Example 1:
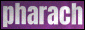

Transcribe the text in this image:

pharach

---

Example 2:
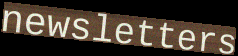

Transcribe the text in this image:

newsletters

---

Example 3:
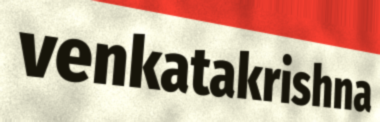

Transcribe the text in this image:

venkatakrishna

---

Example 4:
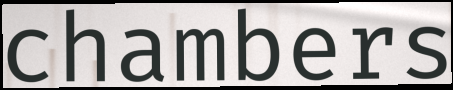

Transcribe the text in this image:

chambers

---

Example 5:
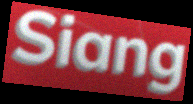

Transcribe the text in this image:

Siang